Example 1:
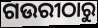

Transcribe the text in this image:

ଗଉରୀଠାରୁ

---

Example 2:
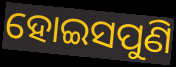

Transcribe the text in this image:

ହୋଇସପୁଣି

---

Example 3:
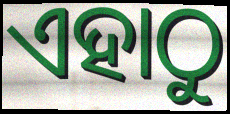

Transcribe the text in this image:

ଏହାଠୁ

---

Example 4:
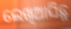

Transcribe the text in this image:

ଲେଖିଆସିଛୁ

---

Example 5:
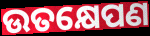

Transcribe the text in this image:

ଉତକ୍ଷେପଣ